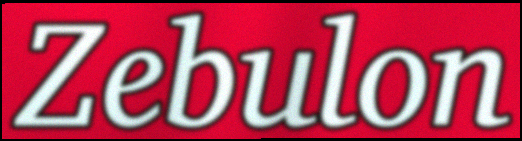
Zebulon